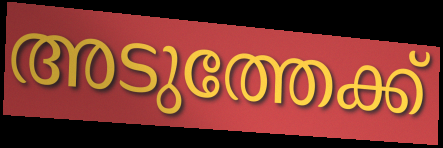
അടുത്തേക്ക്